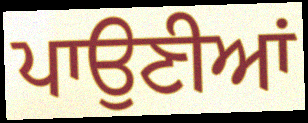
ਪਾਉਣੀਆਂ